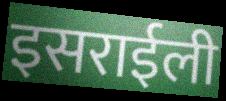
इसराईली